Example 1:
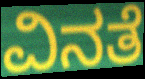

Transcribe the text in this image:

ವಿನತೆ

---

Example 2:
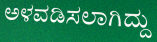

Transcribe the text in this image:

ಅಳವಡಿಸಲಾಗಿದ್ದು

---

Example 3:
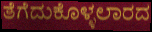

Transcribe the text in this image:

ತೆಗೆದುಕೊಳ್ಳಲಾರದ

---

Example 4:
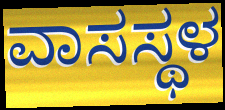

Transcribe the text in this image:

ವಾಸಸ್ಥಳ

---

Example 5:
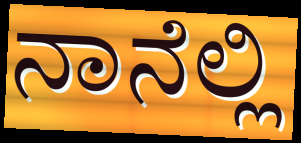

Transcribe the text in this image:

ನಾನೆಲ್ಲಿ